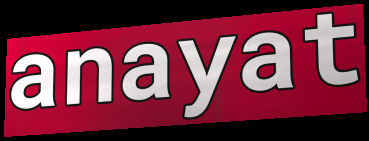
anayat